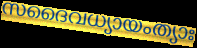
സദൈവധ്യായംത്യാഃ